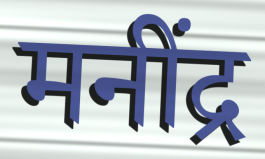
मनींद्र